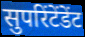
सुपरिंटेंडेंट